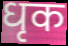
धृक